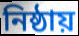
নিষ্ঠায়